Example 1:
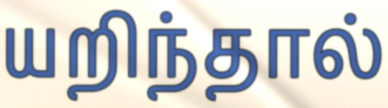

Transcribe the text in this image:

யறிந்தால்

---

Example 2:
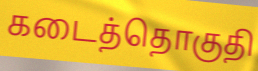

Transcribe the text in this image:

கடைத்தொகுதி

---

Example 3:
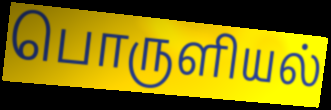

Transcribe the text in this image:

பொருளியல்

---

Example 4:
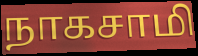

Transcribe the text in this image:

நாகசாமி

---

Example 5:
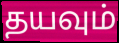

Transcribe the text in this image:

தயவும்